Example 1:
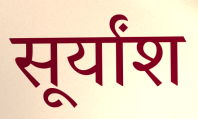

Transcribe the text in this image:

सूर्यांश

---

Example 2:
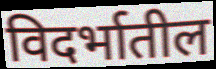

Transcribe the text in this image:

विदर्भातील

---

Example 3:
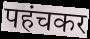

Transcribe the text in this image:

पहंचकर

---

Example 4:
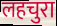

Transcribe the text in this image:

लहचुरा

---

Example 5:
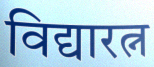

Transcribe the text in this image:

विद्यारत्न